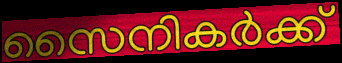
സൈനികർക്ക്